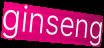
ginseng